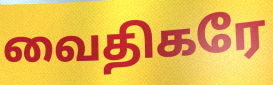
வைதிகரே